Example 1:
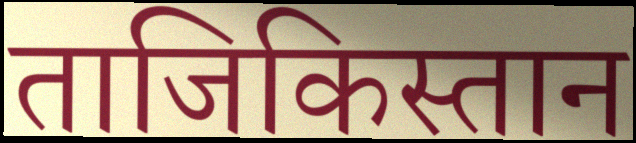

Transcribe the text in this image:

ताजिकिस्तान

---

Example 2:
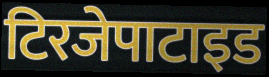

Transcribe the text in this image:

टिरजेपाटाइड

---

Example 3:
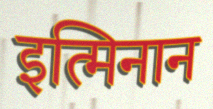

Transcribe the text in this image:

इत्मिनान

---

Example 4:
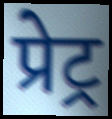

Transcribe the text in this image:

प्रेट्र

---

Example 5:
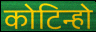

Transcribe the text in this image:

कोटिन्हो